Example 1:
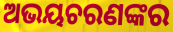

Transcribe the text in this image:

ଅଭୟଚରଣଙ୍କର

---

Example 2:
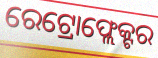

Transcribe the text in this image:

ରେଟ୍ରୋଫ୍ଲେକ୍ଟର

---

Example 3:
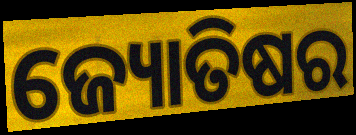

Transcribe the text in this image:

ଜ୍ୟୋତିଷର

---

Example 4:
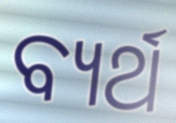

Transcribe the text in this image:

ବ୍ଯର୍ଥ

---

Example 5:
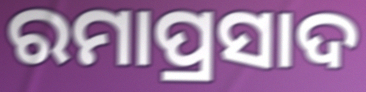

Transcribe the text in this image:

ରମାପ୍ରସାଦ